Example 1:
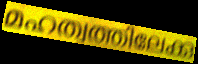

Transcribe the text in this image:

മഹത്വത്തിലേക്കു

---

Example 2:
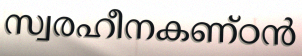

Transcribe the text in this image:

സ്വരഹീനകണ്ഠൻ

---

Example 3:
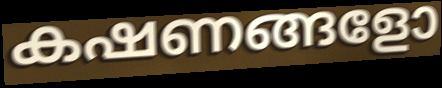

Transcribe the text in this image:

കഷണങ്ങളോ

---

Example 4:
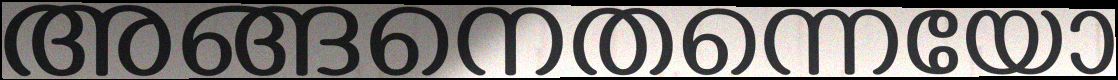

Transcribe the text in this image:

അങ്ങനെതന്നെയോ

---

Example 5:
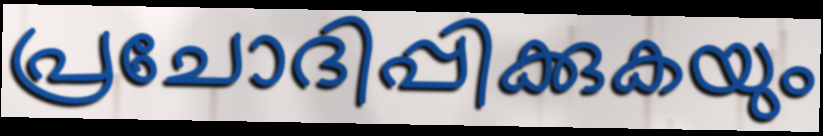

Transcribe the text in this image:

പ്രചോദിപ്പിക്കുകയും